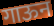
गाऊन